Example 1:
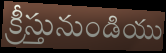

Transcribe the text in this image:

క్రీస్తునుండియు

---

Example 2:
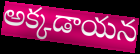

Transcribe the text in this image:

అక్కడాయన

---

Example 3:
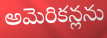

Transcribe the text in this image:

అమెరికన్లను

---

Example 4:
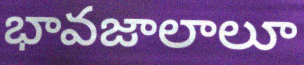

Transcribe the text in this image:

భావజాలాలూ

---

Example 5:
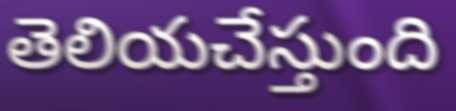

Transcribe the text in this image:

తెలియచేస్తుంది